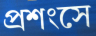
প্রশংসে